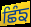
ਛਿੰਙ